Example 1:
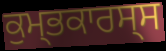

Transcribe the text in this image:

ਕੁਮ੍ਭਕਾਰਸ੍ਸ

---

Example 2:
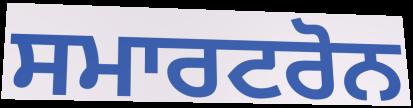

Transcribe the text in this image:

ਸਮਾਰਟਰੋਨ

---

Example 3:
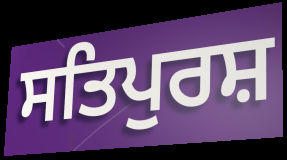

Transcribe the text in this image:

ਸਤਿਪੁਰਸ਼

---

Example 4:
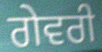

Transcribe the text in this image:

ਗੇਵਰੀ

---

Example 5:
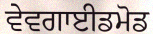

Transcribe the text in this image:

ਵੇਵਗਾਈਡਮੋਡ